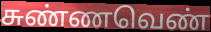
சுண்ணவெண்